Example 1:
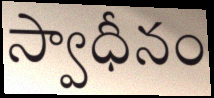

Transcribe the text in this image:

స్వాధీనం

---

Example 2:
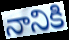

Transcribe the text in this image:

నానికి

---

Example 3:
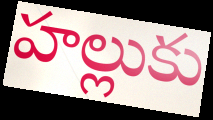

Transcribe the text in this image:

హల్లుకు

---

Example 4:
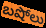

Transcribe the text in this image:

బషోలు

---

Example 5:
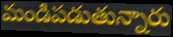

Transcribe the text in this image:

మండిపడుతున్నారు